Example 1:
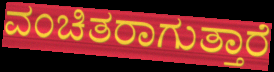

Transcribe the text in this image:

ವಂಚಿತರಾಗುತ್ತಾರೆ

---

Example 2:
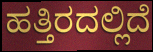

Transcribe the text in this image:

ಹತ್ತಿರದಲ್ಲಿದೆ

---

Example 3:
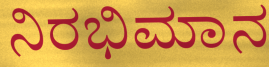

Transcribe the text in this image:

ನಿರಭಿಮಾನ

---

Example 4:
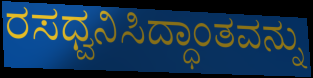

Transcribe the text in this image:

ರಸಧ್ವನಿಸಿದ್ಧಾಂತವನ್ನು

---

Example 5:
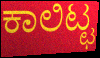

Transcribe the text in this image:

ಕಾಲಿಟ್ಟ